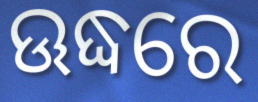
ଊଦ୍ଧରେ